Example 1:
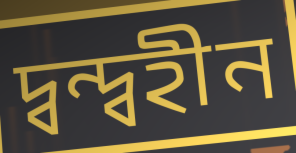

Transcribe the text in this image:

দ্বন্দ্বহীন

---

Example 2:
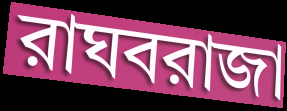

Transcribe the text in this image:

রাঘবরাজা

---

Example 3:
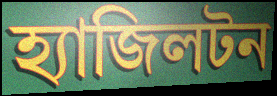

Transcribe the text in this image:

হ্যাজিলটন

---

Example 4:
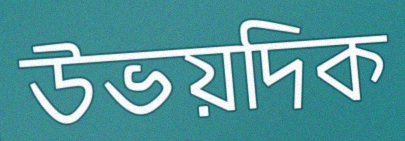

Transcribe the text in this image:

উভয়দিক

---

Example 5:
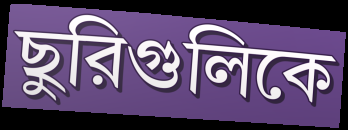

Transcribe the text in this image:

ছুরিগুলিকে